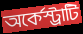
অর্কেস্ট্রাটি